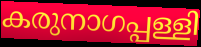
കരുനാഗപ്പള്ളി